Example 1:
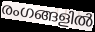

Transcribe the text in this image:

രംഗങ്ങളിൽ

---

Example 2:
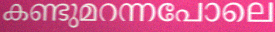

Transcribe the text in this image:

കണ്ടുമറന്നപോലെ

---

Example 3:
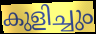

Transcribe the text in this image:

കുളിച്ചും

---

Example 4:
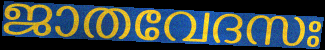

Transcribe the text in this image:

ജാതവേദസഃ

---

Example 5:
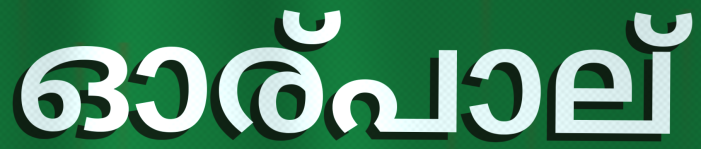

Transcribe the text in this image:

ഓര്പാല്